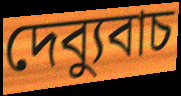
দেব্যুবাচ